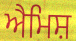
ਐਮਿਸ਼